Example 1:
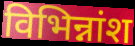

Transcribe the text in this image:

विभिन्नांश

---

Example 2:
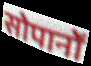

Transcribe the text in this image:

सोपानों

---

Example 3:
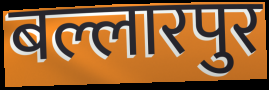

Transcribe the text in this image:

बल्लारपुर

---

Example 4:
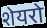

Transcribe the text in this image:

शेयरो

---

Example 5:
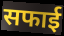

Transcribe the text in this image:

सफाई